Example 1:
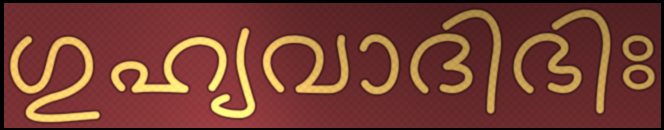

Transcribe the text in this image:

ഗുഹ്യവാദിഭിഃ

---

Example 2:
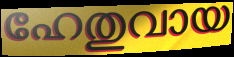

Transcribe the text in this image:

ഹേതുവായ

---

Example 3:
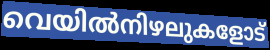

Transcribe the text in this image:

വെയിൽനിഴലുകളോട്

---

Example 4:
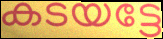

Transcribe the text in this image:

കടയട്ടേ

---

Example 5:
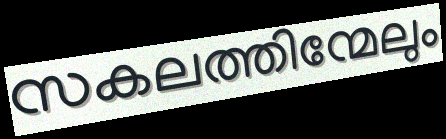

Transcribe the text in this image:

സകലത്തിന്മേലും